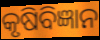
କୃଷିବିଜ୍ଞାନ